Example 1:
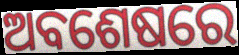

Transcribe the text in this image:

ଅବଶେଷରେ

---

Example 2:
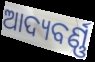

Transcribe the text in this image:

ଆଦ୍ୟବର୍ଣ୍ଣ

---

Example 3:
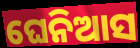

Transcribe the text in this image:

ଘେନିଆସ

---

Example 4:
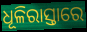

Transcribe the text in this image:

ଧୂଳିରାସ୍ତାରେ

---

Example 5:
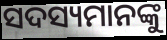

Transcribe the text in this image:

ସଦସ୍ୟମାନଙ୍କୁ